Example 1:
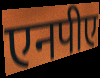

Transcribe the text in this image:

एनपीए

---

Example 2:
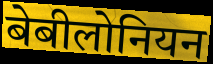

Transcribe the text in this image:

बेबीलोनियन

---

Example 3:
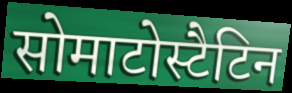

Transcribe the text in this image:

सोमाटोस्टैटिन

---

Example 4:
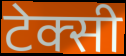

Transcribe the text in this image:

टेक्‍सी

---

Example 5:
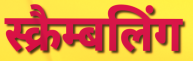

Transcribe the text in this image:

स्क्रैम्बलिंग